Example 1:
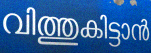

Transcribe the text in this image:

വിത്തുകിട്ടാൻ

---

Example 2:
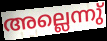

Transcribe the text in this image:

അല്ലെന്നു്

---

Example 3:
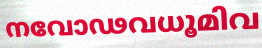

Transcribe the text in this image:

നവോഢവധൂമിവ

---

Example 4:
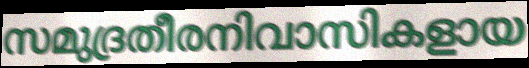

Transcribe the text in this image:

സമുദ്രതീരനിവാസികളായ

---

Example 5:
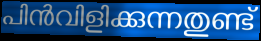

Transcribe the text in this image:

പിൻവിളിക്കുന്നതുണ്ട്